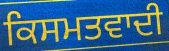
ਕਿਸਮਤਵਾਦੀ